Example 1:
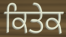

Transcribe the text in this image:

ਕਿਤੇਕ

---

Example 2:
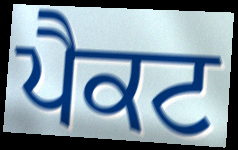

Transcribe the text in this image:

ਪੈਕਟ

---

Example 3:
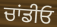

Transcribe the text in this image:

ਚਾਂਡੀਓ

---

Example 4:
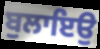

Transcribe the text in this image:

ਬੁਲਾਇਉ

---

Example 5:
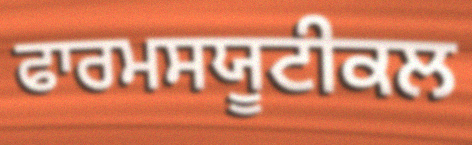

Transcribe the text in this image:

ਫਾਰਮਸਯੂਟੀਕਲ